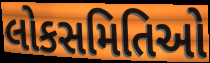
લોકસમિતિઓ